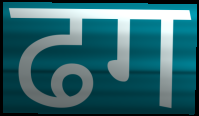
ढग